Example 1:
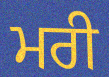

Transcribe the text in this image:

ਮਰੀ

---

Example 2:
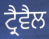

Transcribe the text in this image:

ਟ੍ਰੈਵੈਲ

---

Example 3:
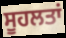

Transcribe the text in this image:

ਸੂਹਲਤਾਂ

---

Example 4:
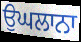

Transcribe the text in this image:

ਉਘਲਾਨਾ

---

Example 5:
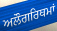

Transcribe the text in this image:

ਅਲੌਗਰਿਥਮਾਂ